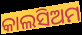
କାଲସିଅମ